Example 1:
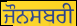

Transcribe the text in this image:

ਜੌਨਸਬਰੀ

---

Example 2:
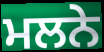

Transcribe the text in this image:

ਮਲਨੇ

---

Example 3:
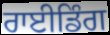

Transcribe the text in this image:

ਰਾਈਡਿੰਗ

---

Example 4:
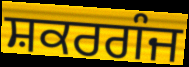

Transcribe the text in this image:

ਸ਼ਕਰਗੰਜ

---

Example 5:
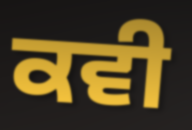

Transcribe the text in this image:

ਕਵੀ